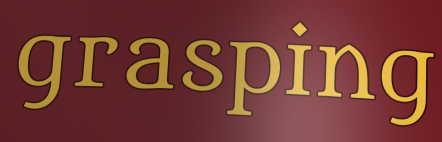
grasping